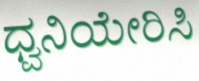
ಧ್ವನಿಯೇರಿಸಿ